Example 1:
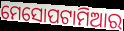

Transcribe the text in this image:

ମେସୋପଟାମିଆର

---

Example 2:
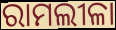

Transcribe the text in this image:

ରାମଲୀଳା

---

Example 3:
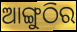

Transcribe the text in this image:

ଆଙ୍ଗୁଠିର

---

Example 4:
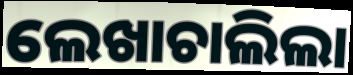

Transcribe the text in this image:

ଲେଖାଚାଲିଲା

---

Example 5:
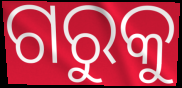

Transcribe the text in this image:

ଗରୁକୁ